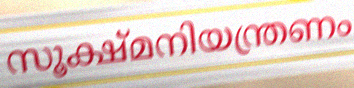
സൂക്ഷ്മനിയന്ത്രണം